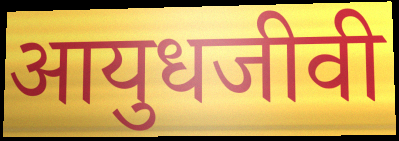
आयुधजीवी